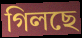
গিলছে